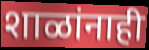
शाळांनाही